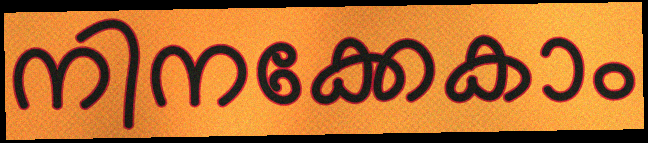
നിനക്കേകാം